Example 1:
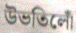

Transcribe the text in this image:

উভতিলোঁ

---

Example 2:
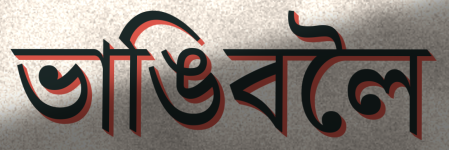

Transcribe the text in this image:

ভাঙিবলৈ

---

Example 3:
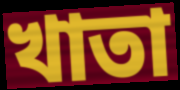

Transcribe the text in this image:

খাতা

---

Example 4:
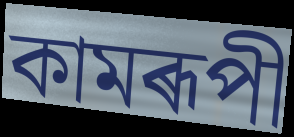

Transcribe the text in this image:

কামৰূপী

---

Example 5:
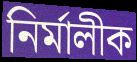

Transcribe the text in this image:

নিৰ্মালীক